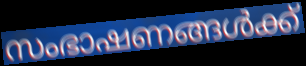
സംഭാഷണങ്ങൾക്ക്